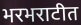
भरभराटीत